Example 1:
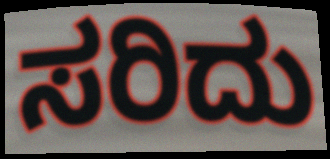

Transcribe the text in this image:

ಸರಿದು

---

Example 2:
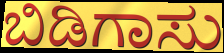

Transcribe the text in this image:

ಬಿಡಿಗಾಸು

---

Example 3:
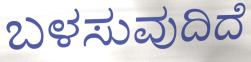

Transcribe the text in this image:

ಬಳಸುವುದಿದೆ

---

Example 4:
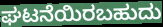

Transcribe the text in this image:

ಘಟನೆಯಿರಬಹುದು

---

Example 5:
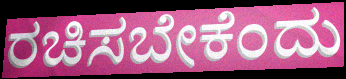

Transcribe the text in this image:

ರಚಿಸಬೇಕೆಂದು